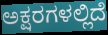
ಅಕ್ಷರಗಳಲ್ಲಿದೆ